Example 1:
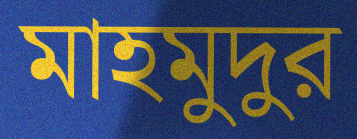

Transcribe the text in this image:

মাহমুদুর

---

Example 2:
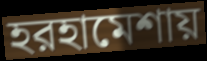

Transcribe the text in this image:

হরহামেশায়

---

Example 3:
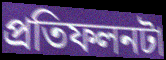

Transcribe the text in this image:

প্রতিফলনটা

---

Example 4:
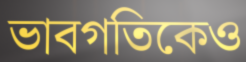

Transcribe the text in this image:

ভাবগতিকেও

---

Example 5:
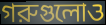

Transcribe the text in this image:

গরুগুলোও